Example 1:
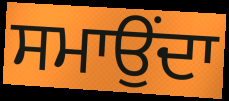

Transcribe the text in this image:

ਸਮਾਉਂਦਾ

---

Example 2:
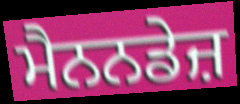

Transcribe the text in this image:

ਮੈਨਨਡੇਜ਼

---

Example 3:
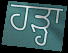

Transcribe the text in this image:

ਹੜ੍ਹਾ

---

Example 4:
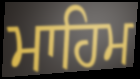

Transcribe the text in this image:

ਮਾਹਿਮ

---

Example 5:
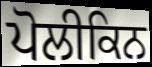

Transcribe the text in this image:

ਪੋਲੀਕਿਨ